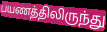
பயணத்திலிருந்து